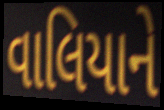
વાલિયાને